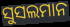
ସୁସଲମାନ